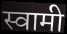
स्वामी